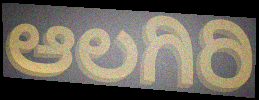
ಆಲಗಿರಿ